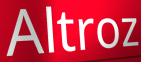
Altroz